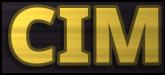
CIM